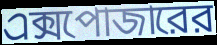
এক্সপোজারের